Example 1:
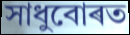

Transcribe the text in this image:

সাধুবোৰত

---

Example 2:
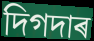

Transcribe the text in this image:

দিগদাৰ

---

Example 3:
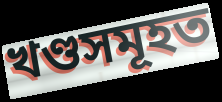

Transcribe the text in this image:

খণ্ডসমূহত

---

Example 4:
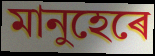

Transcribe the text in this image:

মানুহেৰে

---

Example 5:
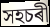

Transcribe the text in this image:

সহচৰী